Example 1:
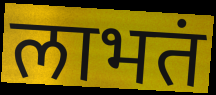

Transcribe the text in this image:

लाभतं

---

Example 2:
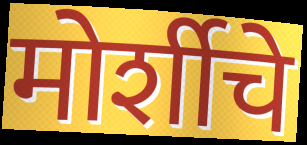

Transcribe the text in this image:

मोर्शीचे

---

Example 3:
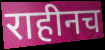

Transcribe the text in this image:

राहीनच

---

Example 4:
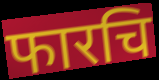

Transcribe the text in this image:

फारचि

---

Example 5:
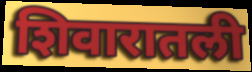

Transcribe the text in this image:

शिवारातली